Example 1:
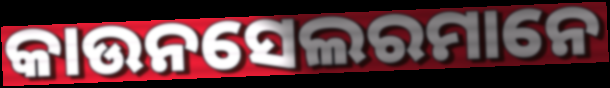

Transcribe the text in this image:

କାଉନସେଲରମାନେ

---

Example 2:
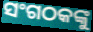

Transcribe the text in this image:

ସଂଗଠକଙ୍କୁ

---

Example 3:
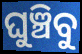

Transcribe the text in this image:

ଘୁଞ୍ଚିବୁ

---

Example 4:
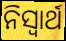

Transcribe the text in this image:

ନିସ୍ୱାର୍ଥ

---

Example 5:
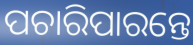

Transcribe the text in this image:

ପଚାରିପାରନ୍ତେ